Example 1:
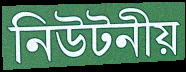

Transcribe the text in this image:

নিউটনীয়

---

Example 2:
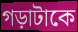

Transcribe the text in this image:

গড়াটাকে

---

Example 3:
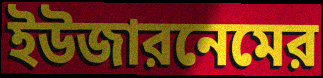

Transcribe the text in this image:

ইউজারনেমের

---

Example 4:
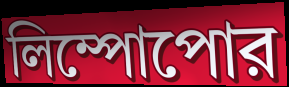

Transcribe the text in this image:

লিম্পোপোর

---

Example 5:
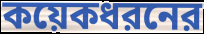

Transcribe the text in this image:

কয়েকধরনের